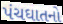
પંચઘાતનો